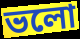
ভলো